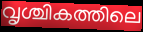
വൃശ്ചികത്തിലെ